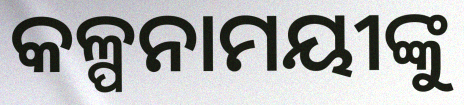
କଳ୍ପନାମୟୀଙ୍କୁ